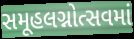
સમૂહલગ્નોત્સવમાં